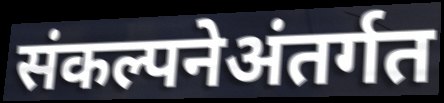
संकल्पनेअंतर्गत